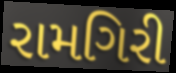
રામગિરી